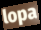
lopa